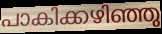
പാകിക്കഴിഞ്ഞു